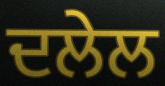
ਦਲੇਲ